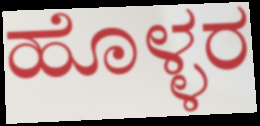
ಹೊಳ್ಳರ